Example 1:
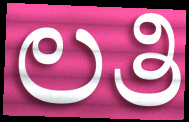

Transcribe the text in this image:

ಲತಿ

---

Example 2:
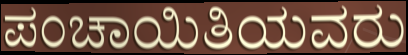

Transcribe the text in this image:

ಪಂಚಾಯಿತಿಯವರು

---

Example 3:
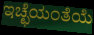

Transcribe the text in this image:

ಇಚ್ಛೆಯಂತೆಯೆ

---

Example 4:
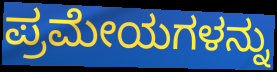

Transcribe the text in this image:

ಪ್ರಮೇಯಗಳನ್ನು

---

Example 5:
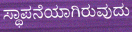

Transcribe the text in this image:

ಸ್ಥಾಪನೆಯಾಗಿರುವುದು